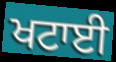
ਖਟਾਈ